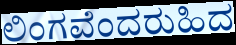
ಲಿಂಗವೆಂದರುಹಿದ